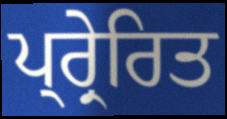
ਪ੍ਰ੍ਰੇਰਿਤ